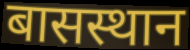
बासस्थान